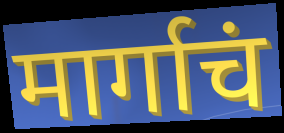
मार्गाचं